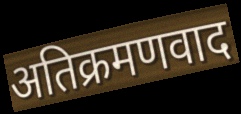
अतिक्रमणवाद